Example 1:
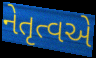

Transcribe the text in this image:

નેતૃત્વએ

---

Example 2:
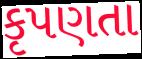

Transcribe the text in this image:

કૃપણતા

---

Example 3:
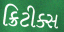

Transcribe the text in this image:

ક્રિટીક્સ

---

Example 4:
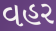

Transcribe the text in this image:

વહર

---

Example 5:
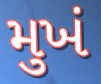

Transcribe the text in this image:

મુખં